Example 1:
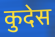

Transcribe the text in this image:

कुदेस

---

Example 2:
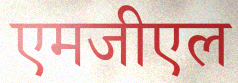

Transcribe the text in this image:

एमजीएल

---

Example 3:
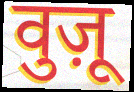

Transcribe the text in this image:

वुज़ू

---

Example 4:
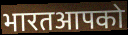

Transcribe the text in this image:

भारतआपको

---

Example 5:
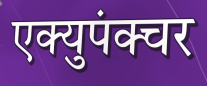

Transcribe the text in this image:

एक्युपंक्चर